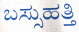
ಬಸ್ಸುಹತ್ತಿ